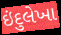
ઇંદુલેખા